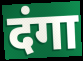
दंगा